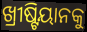
ଖ୍ରୀଷ୍ଟିୟାନକୁ